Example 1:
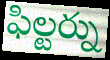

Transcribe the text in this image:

ఫిల్టర్ను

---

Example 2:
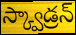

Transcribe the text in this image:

స్క్వాడ్రన్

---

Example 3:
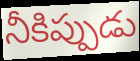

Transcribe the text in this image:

నీకిప్పుడు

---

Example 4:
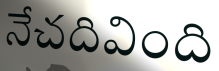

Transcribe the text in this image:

నేచదివింది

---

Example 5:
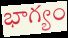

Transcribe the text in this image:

భాగ్యం